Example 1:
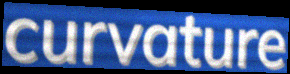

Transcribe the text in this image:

curvature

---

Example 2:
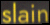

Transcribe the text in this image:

slain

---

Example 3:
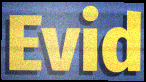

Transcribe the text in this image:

Evid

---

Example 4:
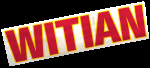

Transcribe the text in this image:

WITIAN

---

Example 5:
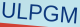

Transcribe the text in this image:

ULPGM